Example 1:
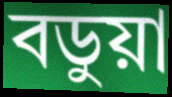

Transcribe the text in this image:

বডুয়া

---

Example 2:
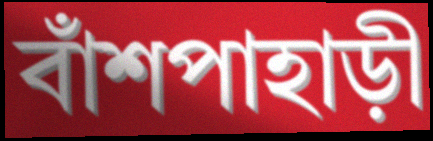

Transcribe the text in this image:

বাঁশপাহাড়ী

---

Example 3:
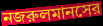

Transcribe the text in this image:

নজরুলমানসের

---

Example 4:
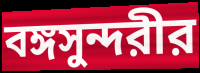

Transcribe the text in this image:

বঙ্গসুন্দরীর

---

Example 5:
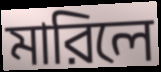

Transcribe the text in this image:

মারিলে